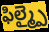
ఫిల్మ్పై